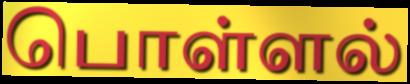
பொள்ளல்